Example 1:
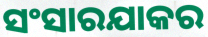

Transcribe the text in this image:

ସଂସାରଯାକର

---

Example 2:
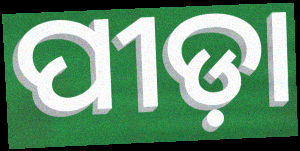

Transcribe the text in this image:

ପୀଡ଼ା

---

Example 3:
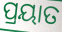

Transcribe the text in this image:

ପ୍ରୟାତ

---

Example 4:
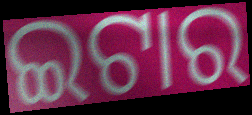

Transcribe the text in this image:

ଇଟାର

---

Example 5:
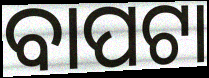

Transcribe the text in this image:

ବାପଟା